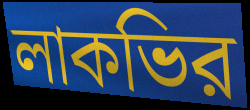
লাকভির